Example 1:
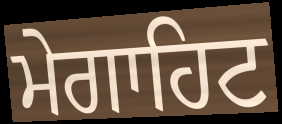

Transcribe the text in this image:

ਮੇਗਾਹਿਟ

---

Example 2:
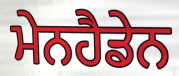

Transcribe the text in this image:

ਮੇਨਹੈਡੇਨ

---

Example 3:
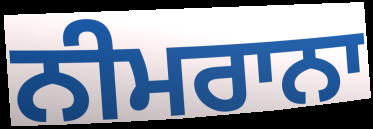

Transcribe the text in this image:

ਨੀਮਰਾਨਾ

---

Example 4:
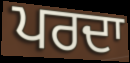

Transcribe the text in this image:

ਪਰਦਾ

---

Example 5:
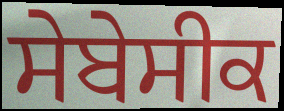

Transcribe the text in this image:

ਸੇਬੇਸੀਕ